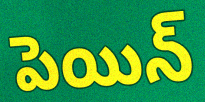
పెయిన్